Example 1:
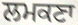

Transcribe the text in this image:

ਲਮਕਣਾ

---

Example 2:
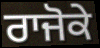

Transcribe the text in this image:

ਰਾਜੋਕੇ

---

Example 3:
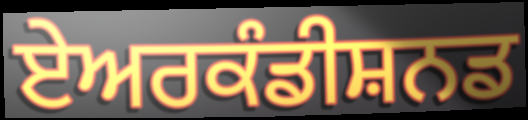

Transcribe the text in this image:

ਏਅਰਕੰਡੀਸ਼ਨਡ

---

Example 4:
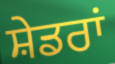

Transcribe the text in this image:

ਸ਼ੇਡਰਾਂ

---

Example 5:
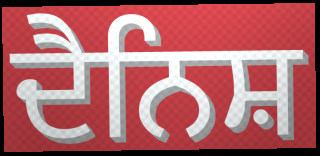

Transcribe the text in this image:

ਦੈਨਿਸ਼